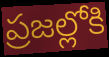
ప్రజల్లోకి